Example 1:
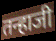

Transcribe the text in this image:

तन्हाजी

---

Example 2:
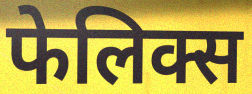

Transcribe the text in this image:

फेलिक्स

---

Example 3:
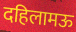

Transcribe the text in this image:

दहिलामऊ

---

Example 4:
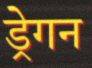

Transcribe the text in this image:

ड्रेगन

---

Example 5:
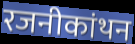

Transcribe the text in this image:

रजनीकांथन